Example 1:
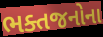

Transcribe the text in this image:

ભક્તજનોના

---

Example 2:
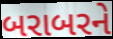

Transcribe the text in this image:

બરાબરને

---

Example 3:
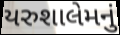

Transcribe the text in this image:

યરુશાલેમનું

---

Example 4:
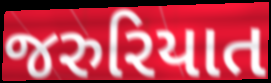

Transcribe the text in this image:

જરુરિયાત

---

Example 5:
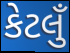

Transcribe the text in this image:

કેટલુઁ